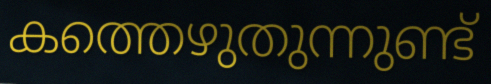
കത്തെഴുതുന്നുണ്ട്